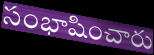
సంభాషించారు